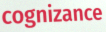
cognizance